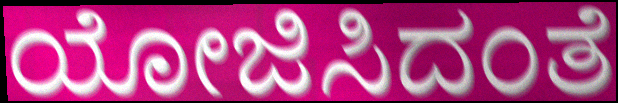
ಯೋಜಿಸಿದಂತೆ